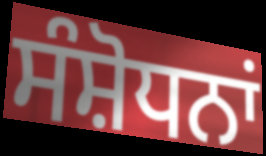
ਸੰਸ਼ੋਧਨਾਂ